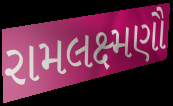
રામલક્ષ્મણૌ